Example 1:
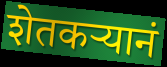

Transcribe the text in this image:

शेतकऱ्यानं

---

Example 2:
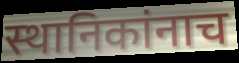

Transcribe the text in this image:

स्थानिकांनाच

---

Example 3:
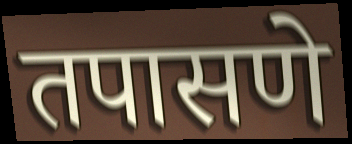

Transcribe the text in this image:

तपासणे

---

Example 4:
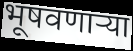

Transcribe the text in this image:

भूषवणाऱ्या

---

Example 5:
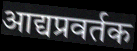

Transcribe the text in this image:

आद्यप्रवर्तक